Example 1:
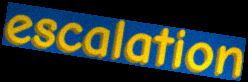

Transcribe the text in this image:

escalation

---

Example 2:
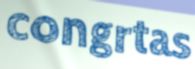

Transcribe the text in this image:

congrtas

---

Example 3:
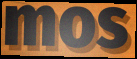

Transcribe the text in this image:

mos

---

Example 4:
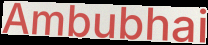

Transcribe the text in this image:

Ambubhai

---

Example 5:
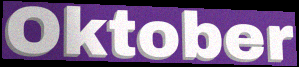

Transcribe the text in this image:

Oktober